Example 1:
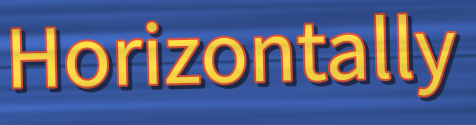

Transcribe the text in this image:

Horizontally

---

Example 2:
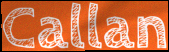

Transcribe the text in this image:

Callan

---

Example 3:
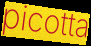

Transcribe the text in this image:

picotta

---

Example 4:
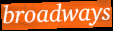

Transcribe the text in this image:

broadways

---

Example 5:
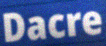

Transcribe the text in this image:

Dacre